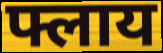
फ्लाय